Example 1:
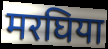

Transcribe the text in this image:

मरघिया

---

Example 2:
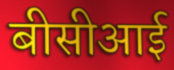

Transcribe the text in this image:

बीसीआई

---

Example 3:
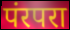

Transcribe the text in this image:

पंरपरा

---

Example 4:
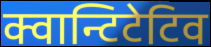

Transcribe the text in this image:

क्वान्टिटेटिव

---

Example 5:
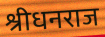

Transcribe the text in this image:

श्रीधनराज